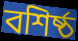
বশিষ্ঠ